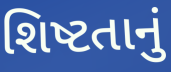
શિષ્ટતાનું